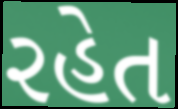
રહેત